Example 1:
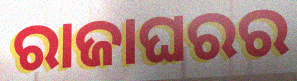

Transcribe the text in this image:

ରାଜାଘରର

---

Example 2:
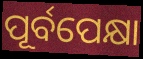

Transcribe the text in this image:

ପୂର୍ବପେକ୍ଷା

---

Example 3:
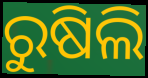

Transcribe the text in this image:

ରୁଷିଲି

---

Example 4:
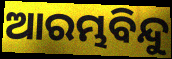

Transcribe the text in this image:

ଆରମ୍ଭବିନ୍ଦୁ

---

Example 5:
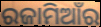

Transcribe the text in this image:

ରଜାମିଆଁର